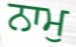
ਨਾਮੁ